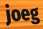
joeg